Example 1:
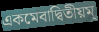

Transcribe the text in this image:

একমেবাদ্বিতীয়ম্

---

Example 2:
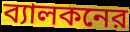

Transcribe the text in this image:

ব্যালকনের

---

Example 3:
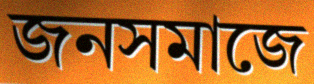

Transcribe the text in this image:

জনসমাজে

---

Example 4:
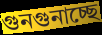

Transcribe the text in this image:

গুনগুনাচ্ছে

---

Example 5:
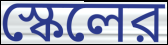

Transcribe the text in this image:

স্কেলের